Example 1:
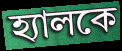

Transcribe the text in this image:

হ্যালকে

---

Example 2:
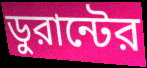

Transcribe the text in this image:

ডুরান্টের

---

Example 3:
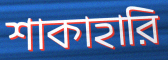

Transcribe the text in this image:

শাকাহারি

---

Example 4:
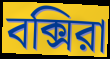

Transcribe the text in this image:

বক্সিরা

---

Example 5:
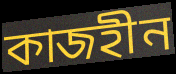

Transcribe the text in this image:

কাজহীন